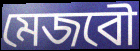
মেজবৌ